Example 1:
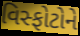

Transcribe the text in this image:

વિસ્ફોટોને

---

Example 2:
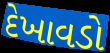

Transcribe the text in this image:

દેખાવડો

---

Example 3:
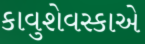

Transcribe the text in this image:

કાવુશેવસ્કાએ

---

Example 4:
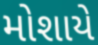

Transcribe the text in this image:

મોશાયે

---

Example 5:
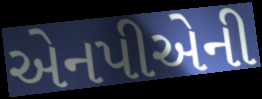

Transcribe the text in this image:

એનપીએની